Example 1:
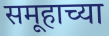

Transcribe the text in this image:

समूहाच्या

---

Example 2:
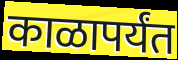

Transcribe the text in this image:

काळापर्यंत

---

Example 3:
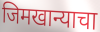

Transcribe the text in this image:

जिमखान्याचा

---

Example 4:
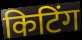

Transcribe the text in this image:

किटिंग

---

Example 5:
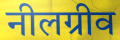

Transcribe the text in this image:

नीलग्रीव